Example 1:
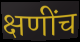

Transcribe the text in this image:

क्षणींच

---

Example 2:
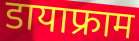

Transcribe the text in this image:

डायाफ्राम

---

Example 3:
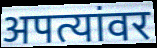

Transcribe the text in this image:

अपत्यांवर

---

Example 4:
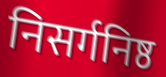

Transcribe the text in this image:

निसर्गनिष्ठ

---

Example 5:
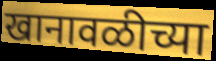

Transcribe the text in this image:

खानावळीच्या